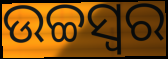
ଉଚ୍ଚସ୍ଵର